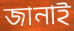
জানাই